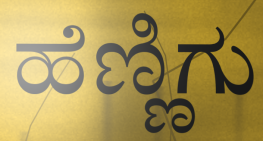
ಹೆಣ್ಣಿಗು